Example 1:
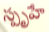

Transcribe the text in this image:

స్పృహే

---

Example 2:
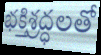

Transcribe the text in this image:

భక్తిశ్రద్ధలతో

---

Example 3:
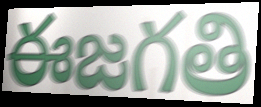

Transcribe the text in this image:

ఈజగతి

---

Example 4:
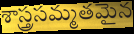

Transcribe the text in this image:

శాస్త్రసమ్మతమైన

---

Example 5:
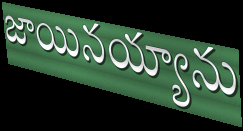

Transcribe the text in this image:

జాయినయ్యాను